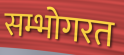
सम्भोगरत